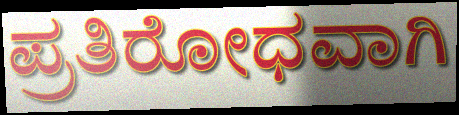
ಪ್ರತಿರೋಧವಾಗಿ